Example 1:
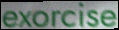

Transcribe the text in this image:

exorcise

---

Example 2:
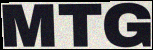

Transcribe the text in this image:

MTG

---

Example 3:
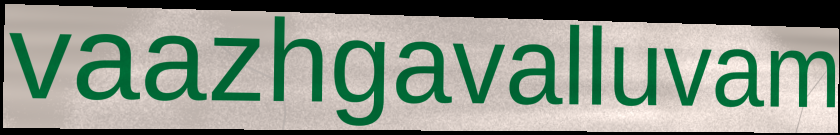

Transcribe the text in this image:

vaazhgavalluvam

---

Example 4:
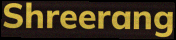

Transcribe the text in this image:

Shreerang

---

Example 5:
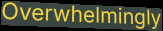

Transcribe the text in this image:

Overwhelmingly